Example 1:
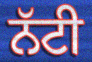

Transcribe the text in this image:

ਨੱਟੀ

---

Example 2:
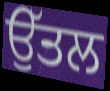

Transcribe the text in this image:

ਉੱਤਲ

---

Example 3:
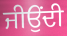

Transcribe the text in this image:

ਜੀਉਂਦੀ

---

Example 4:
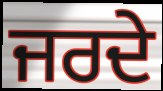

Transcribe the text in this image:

ਜਰਦੇ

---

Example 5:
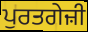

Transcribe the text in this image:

ਪੁਰਤਗੇਜ਼ੀ